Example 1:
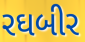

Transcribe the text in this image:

રઘબીર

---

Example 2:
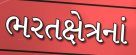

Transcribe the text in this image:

ભરતક્ષેત્રનાં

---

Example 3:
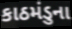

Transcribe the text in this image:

કાઠમંડુના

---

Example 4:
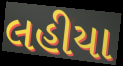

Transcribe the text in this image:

લહીયા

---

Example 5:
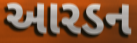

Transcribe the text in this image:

આરડન